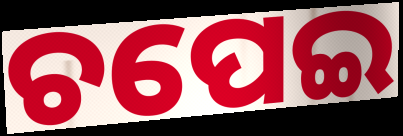
ଚପେଇ